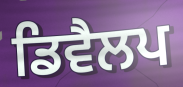
ਡਿਵੈਲਪ